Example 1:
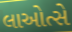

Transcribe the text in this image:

લાઓત્સે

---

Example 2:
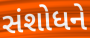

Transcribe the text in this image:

સંશોધને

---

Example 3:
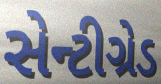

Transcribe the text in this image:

સેન્ટીગ્રેડ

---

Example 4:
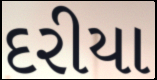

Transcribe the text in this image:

દરીયા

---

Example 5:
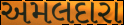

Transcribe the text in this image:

અમલદારા